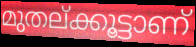
മുതല്ക്കൂട്ടാണ്